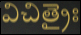
విచిత్రైః